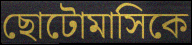
ছোটোমাসিকে